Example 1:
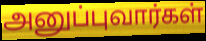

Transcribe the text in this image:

அனுப்புவார்கள்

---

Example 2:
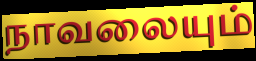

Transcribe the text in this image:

நாவலையும்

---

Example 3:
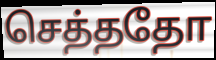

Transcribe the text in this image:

செத்ததோ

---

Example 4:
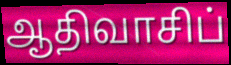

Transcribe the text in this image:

ஆதிவாசிப்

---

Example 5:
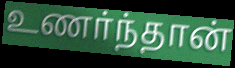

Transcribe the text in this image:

உணர்ந்தான்